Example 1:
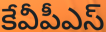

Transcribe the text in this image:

కేవీపీఎస్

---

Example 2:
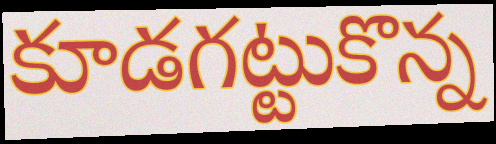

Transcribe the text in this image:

కూడగట్టుకొన్న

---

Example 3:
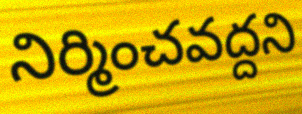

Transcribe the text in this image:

నిర్మించవద్దని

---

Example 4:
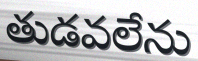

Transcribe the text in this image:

తుడవలేను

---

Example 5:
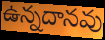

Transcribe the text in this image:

ఉన్నదానవు